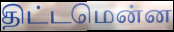
திட்டமென்ன